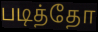
படித்தோ